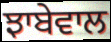
ਝਾਬੇਵਾਲ